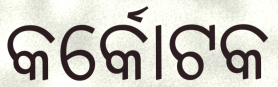
କର୍କୋଟକ